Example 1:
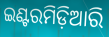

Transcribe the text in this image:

ଇଣ୍ଟରମିଡ଼ିଆରି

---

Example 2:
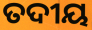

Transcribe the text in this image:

ତଦୀୟ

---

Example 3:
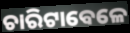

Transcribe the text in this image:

ଚାରିଟାବେଳେ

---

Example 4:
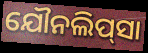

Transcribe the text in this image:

ଯୌନଲିପ୍‌ସା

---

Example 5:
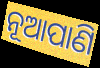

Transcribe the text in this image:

ନୂଆପାଣି